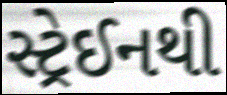
સ્ટ્રેઈનથી